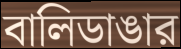
বালিডাঙার